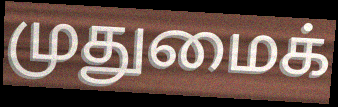
முதுமைக்